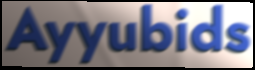
Ayyubids